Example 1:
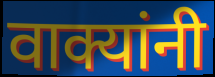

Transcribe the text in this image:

वाक्यांनी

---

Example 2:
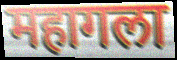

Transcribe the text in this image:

महागला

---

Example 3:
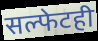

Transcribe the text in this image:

सल्फेटही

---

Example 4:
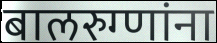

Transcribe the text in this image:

बालरुग्णांना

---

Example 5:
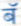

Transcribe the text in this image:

बॅ